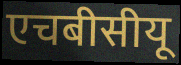
एचबीसीयू